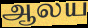
ஆலய